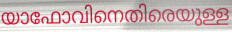
യാഫോവിനെതിരെയുള്ള